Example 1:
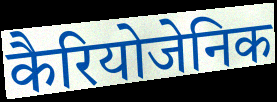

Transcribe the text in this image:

कैरियोजेनिक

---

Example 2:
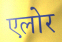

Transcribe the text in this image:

एलोर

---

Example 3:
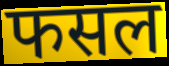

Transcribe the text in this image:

फसल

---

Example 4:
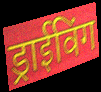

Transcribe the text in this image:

ड्राईविंग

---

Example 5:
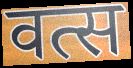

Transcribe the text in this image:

वत्स